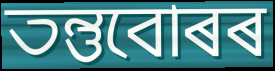
তন্তুবোৰৰ